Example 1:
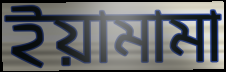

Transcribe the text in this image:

ইয়ামামা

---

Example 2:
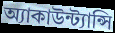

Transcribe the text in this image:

অ্যাকাউন্ট্যান্সি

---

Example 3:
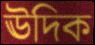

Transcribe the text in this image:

ঊদিক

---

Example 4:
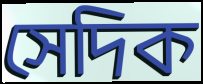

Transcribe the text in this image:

সেদিক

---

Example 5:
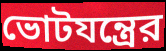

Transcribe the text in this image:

ভোটযন্ত্রের